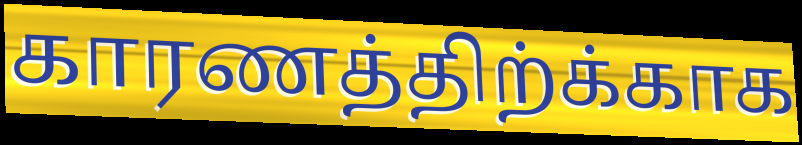
காரணத்திற்க்காக